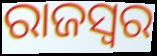
ରାଜସ୍ୱର